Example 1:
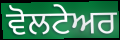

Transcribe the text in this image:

ਵੋਲਟੇਅਰ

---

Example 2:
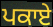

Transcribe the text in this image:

ਪਕਾਏ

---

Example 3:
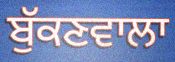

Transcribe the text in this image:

ਬੁੱਕਣਵਾਲਾ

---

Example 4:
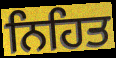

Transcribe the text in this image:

ਨਿਹਿਤ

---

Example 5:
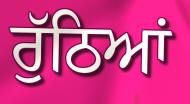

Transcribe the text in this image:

ਰੁੱਠਿਆਂ